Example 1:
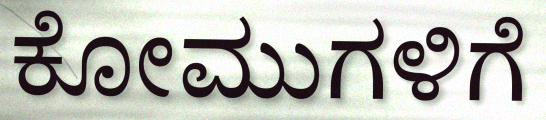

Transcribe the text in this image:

ಕೋಮುಗಳಿಗೆ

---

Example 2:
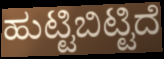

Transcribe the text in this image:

ಹುಟ್ಟಿಬಿಟ್ಟಿದೆ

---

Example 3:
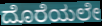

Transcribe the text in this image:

ದೊರೆಯಲೇ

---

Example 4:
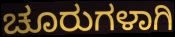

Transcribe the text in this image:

ಚೂರುಗಳಾಗಿ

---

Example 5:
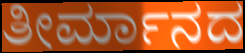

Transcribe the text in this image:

ತೀರ್ಮಾನದ